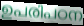
ഉപരിപഠന